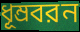
ধূম্রবরন